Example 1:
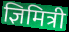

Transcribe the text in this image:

ज्ञिमित्री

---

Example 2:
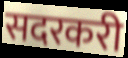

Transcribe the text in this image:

सदरकरी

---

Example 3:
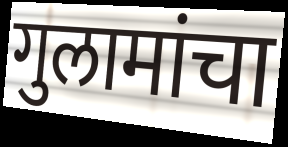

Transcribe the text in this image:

गुलामांचा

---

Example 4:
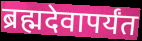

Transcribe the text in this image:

ब्रह्मदेवापर्यंत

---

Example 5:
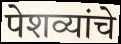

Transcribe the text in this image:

पेशव्यांचे